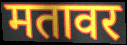
मतावर